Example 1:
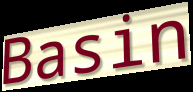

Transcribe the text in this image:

Basin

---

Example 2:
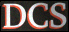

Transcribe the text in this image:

DCS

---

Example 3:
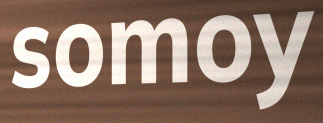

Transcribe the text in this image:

somoy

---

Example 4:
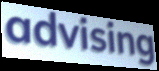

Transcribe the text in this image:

advising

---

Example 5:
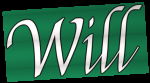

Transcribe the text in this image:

Will